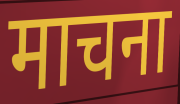
माचना